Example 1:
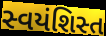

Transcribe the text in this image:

સ્વયંશિસ્ત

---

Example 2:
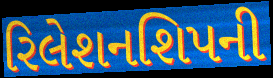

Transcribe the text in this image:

રિલેશનશિપની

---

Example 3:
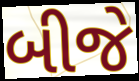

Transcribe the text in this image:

બીજે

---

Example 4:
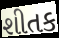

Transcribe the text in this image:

શીતક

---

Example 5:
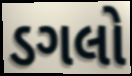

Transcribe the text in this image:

ડગલો